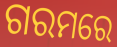
ଗରମରେ